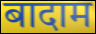
बादाम